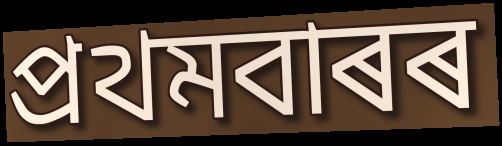
প্ৰথমবাৰৰ